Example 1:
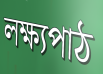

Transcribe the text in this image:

লক্ষ্যপাঠ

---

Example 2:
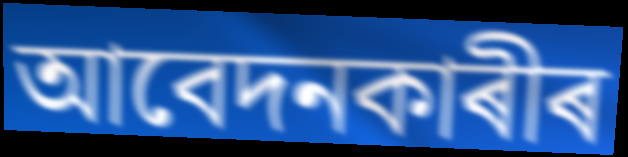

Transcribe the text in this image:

আবেদনকাৰীৰ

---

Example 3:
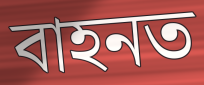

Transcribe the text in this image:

বাহনত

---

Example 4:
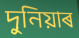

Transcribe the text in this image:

দুনিয়াৰ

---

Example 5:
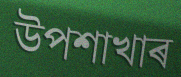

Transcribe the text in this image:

উপশাখাৰ